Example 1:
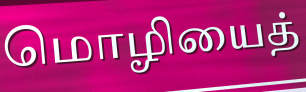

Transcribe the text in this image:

மொழியைத்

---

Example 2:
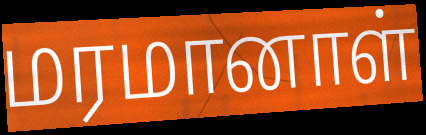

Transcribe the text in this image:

மரமானாள்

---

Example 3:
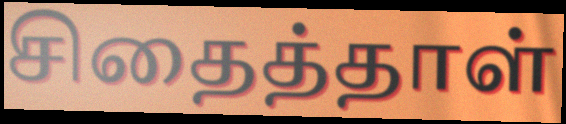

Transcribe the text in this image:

சிதைத்தாள்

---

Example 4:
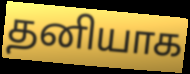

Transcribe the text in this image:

தனியாக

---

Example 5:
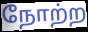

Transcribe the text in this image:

நோற்ற